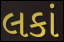
લકાં